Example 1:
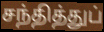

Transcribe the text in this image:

சந்தித்துப்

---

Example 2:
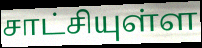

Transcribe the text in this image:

சாட்சியுள்ள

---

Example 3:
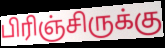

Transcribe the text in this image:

பிரிஞ்சிருக்கு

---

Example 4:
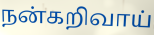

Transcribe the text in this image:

நன்கறிவாய்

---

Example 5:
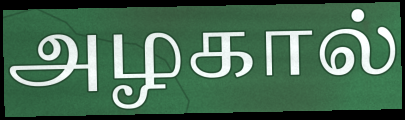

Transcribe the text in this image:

அழகால்